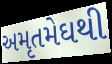
અમૃતમેઘથી